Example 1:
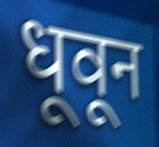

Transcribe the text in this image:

धूवून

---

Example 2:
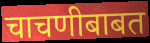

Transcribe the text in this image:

चाचणीबाबत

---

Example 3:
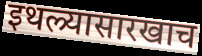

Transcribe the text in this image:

इथल्यासारखाच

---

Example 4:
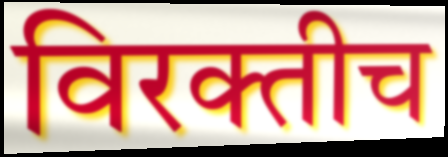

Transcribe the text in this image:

विरक्तीच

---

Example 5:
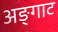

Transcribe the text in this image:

अङ्गाट